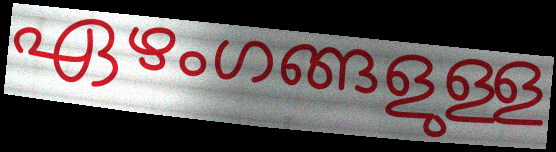
ഏഴംഗങ്ങളുള്ള